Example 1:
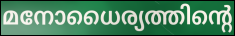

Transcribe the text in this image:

മനോധൈര്യത്തിന്റെ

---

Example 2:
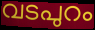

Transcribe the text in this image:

വടപുറം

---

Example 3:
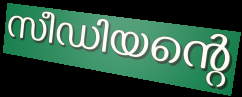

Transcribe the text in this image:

സീഡിയന്റെ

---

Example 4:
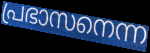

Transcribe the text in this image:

പ്രഭാസനെന്ന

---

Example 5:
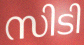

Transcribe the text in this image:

സിടി